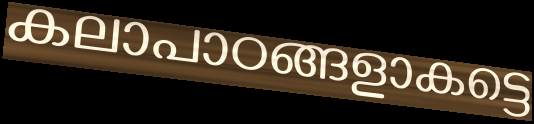
കലാപാഠങ്ങളാകട്ടെ